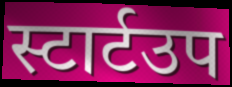
स्टार्टउप